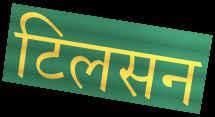
टिलसन